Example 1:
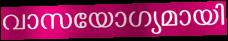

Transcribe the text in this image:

വാസയോഗ്യമായി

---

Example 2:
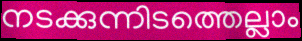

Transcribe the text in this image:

നടക്കുന്നിടത്തെല്ലാം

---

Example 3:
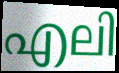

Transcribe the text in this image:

എലി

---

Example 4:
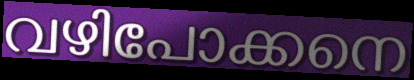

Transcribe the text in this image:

വഴിപോക്കനെ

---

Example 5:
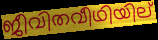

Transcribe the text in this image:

ജീവിതവീഥിയില്